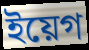
ইয়েগ